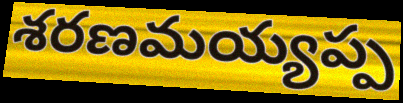
శరణమయ్యప్ప